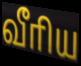
வீரிய